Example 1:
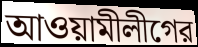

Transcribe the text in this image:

আওয়ামীলীগের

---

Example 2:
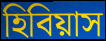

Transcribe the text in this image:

হিবিয়াস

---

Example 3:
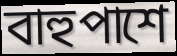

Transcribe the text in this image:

বাহুপাশে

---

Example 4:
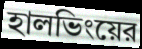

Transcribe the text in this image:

হালভিংয়ের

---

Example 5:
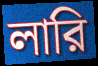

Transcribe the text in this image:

লারি